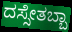
ದಸ್ಸೇತಬ್ಬಾ